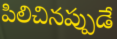
పిలిచినప్పుడే